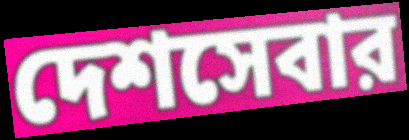
দেশসেবার